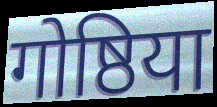
गोष्ठिया